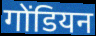
गोंडियन